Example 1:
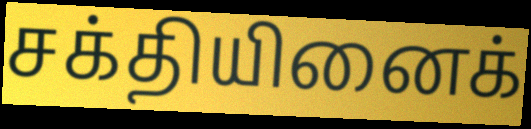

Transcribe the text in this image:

சக்தியினைக்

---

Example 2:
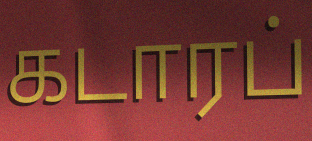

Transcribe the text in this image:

கடாரப்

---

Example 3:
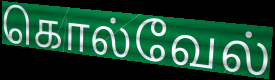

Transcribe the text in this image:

கொல்வேல்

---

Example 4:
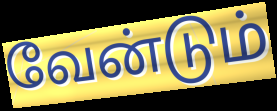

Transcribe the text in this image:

வேன்டும்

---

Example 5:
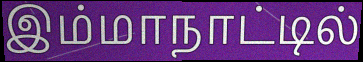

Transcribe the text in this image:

இம்மாநாட்டில்